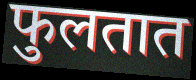
फुलतात